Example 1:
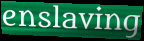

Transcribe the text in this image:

enslaving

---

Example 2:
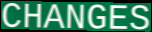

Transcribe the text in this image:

CHANGES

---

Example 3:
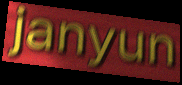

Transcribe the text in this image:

janyun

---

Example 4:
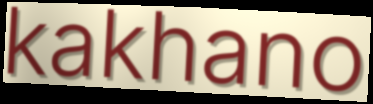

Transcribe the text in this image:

kakhano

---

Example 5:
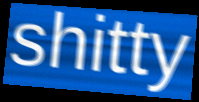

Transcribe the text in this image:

shitty